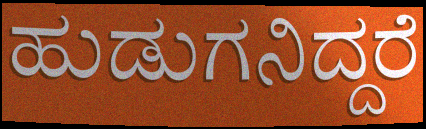
ಹುಡುಗನಿದ್ದರೆ